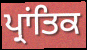
ਪ੍ਰਾਂਤਿਕ